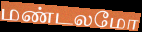
மண்டலமோ